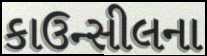
કાઉન્સીલના